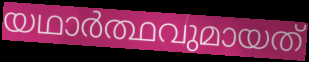
യഥാർത്ഥവുമായത്